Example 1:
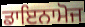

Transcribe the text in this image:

ਡਾਇਨਾਮੋਜ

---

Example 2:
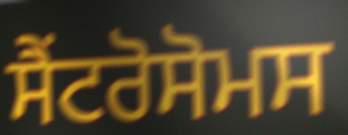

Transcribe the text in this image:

ਸੈਂਟਰੋਸੋਮਸ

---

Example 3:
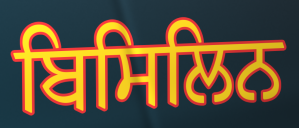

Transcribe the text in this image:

ਬਿਸਿਲਿਨ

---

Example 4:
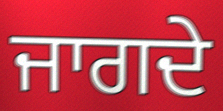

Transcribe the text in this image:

ਜਾਗਦੇ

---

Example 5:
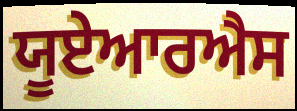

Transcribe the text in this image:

ਯੂਏਆਰਐਸ